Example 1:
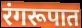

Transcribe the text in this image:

रंगरूपात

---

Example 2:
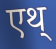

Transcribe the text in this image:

एथ्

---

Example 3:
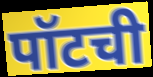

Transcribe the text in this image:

पॉटची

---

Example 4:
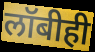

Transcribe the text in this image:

लॉबीही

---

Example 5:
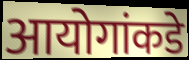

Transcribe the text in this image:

आयोगांकडे